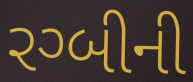
રગ્બીની